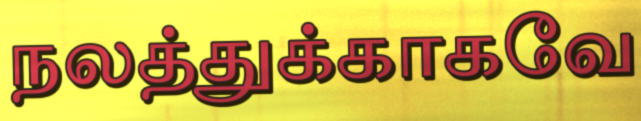
நலத்துக்காகவே